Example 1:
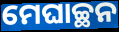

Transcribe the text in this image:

ମେଘାଚ୍ଛନ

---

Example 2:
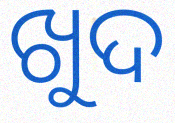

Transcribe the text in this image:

ଖୁଦ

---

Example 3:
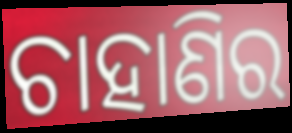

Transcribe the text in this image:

ଚାହାଣିର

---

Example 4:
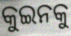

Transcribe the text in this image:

କୁଇନକୁ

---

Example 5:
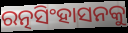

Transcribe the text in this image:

ରତ୍ନସିଂହାସନକୁ